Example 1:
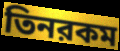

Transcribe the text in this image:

তিনরকম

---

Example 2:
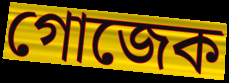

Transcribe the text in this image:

গোজেক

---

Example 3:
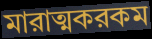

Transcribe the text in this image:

মারাত্মকরকম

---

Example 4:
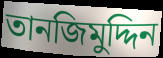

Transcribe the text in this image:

তানজিমুদ্দিন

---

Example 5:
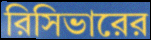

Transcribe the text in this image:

রিসিভারের